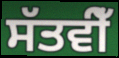
ਸੱਤਵੀਁ